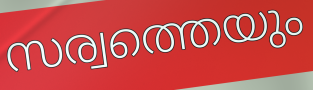
സര്വത്തെയും